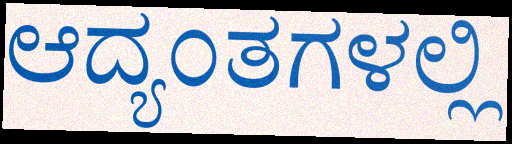
ಆದ್ಯಂತಗಳಲ್ಲಿ